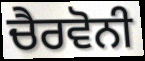
ਚੈਰਵੋਨੀ